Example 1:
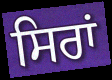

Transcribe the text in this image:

ਸਿਰਾਂ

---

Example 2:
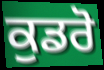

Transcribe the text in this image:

ਕੁਡਰੋ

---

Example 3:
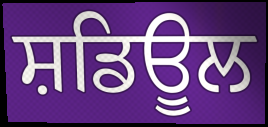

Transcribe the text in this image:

ਸ਼ਡਿਊਲ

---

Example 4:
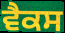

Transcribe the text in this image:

ਵੈਕਸ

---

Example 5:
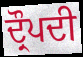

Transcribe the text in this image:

ਦ੍ਰੌਪਦੀ